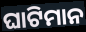
ଘାଟିମାନ